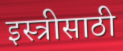
इस्त्रीसाठी